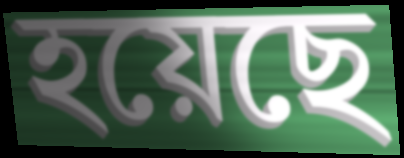
হয়েছে